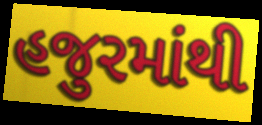
હજુરમાંથી